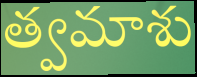
త్వమాశు